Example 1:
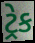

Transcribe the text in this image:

ટ્રેક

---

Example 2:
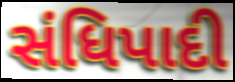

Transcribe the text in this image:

સંધિપાદી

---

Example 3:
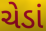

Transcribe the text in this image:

ચેડાં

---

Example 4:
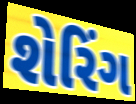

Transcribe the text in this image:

શેરિંગ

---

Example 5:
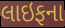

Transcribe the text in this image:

લાઇફના